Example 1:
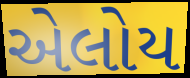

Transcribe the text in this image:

એલોય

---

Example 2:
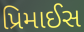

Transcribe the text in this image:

પ્રિમાઈસ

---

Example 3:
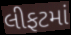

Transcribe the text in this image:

લીફટમાં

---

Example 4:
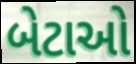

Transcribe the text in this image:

બેટાઓ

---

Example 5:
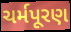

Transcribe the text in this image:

ચર્મપૂરણ